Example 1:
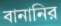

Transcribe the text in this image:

বানানির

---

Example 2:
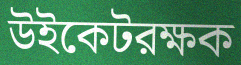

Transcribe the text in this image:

উইকেটরক্ষক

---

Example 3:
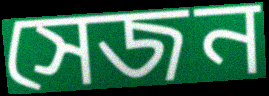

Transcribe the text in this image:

সেজন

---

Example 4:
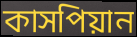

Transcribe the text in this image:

কাসপিয়ান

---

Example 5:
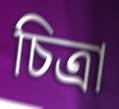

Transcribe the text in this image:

চিত্রা